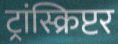
ट्रांस्क्रिप्टर